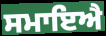
ਸਮਾਇਐ